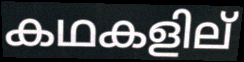
കഥകളില്